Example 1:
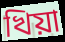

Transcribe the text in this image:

খিয়া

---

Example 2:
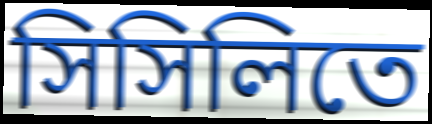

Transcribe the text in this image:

সিসিলিতে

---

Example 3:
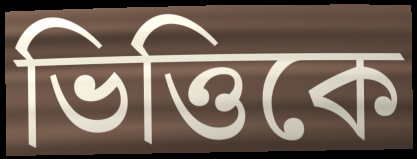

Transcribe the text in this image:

ভিত্তিকে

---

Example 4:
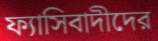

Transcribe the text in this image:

ফ্যাসিবাদীদের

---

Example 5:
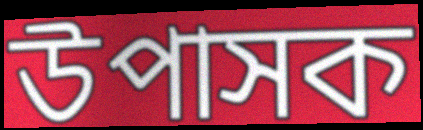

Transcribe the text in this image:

উপাসক